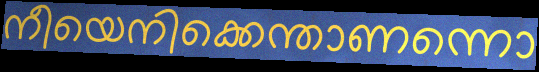
നീയെനിക്കെന്താണന്നൊ